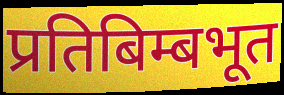
प्रतिबिम्बभूत